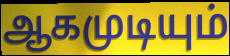
ஆகமுடியும்